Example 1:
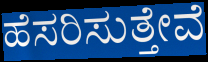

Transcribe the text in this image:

ಹೆಸರಿಸುತ್ತೇವೆ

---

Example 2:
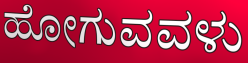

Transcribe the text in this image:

ಹೋಗುವವಳು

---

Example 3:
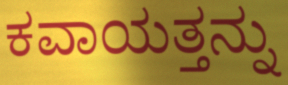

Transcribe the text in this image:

ಕವಾಯತ್ತನ್ನು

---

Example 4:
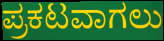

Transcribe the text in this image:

ಪ್ರಕಟವಾಗಲು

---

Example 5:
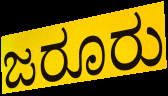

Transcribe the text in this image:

ಜರೂರು